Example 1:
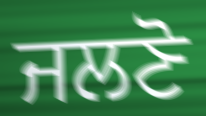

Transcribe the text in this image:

ਜਲਣੋ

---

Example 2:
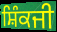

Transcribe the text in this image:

ਸ਼ਿੰਕਜੀ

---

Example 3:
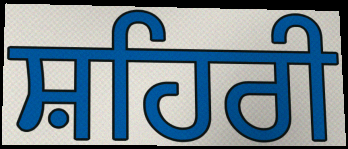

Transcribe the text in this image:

ਸ਼ਹਿਰੀ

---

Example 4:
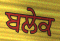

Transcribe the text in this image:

ਬਲੇਕ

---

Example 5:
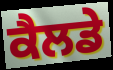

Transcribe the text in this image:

ਕੈਲਡੇ